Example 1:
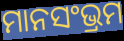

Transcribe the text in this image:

ମାନସଂଭ୍ରମ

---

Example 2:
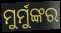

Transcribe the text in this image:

ମୁର୍ମୁଙ୍କର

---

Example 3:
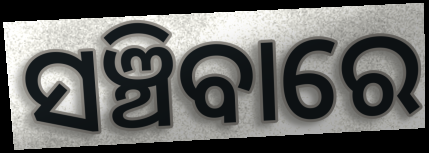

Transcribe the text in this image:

ସଞ୍ଚିବାରେ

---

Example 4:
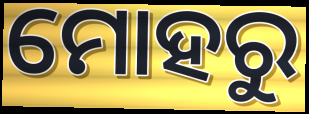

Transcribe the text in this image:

ମୋହରୁ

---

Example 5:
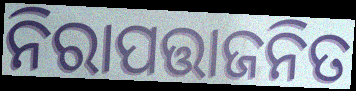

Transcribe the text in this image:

ନିରାପତ୍ତାଜନିତ